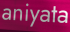
aniyata